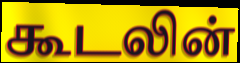
கூடலின்